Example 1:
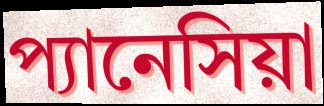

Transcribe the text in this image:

প্যানেসিয়া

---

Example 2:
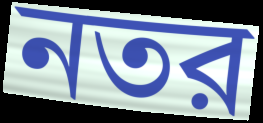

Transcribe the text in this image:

নতর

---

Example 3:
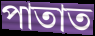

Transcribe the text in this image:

পাতাত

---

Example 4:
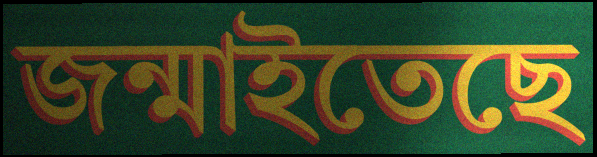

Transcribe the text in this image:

জন্মাইতেছে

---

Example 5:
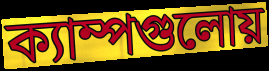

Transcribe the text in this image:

ক্যাম্পগুলোয়